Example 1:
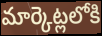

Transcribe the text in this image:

మార్కెట్లలోకి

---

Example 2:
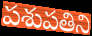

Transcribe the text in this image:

పశుపతిని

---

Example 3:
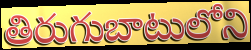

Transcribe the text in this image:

తిరుగుబాటులోని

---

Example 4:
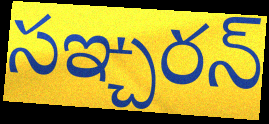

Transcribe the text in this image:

సఞ్చరన్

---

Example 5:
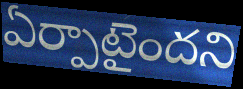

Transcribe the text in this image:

ఏర్పాటైందని